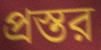
প্রস্তর